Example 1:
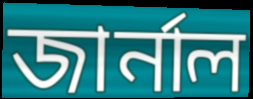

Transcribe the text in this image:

জার্নাল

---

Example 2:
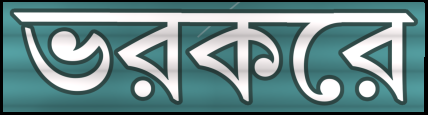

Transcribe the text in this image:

ভরকরে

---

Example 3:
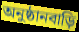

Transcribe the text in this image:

অনুষ্ঠানবাড়ি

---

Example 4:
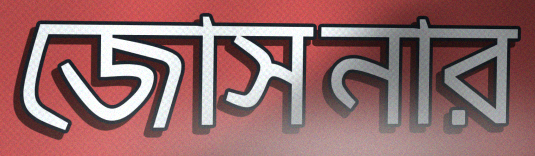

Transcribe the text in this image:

জোসনার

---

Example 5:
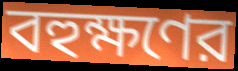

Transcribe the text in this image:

বহুক্ষণের